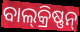
ବାଲ୍‍କ୍ରିଷ୍ଣନ୍